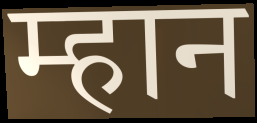
म्हान